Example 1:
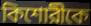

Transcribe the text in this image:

কিশোরীকে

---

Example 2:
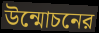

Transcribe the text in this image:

উন্মোচনের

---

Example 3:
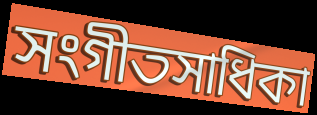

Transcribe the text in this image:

সংগীতসাধিকা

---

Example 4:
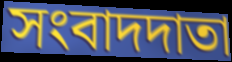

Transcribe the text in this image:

সংবাদদাতা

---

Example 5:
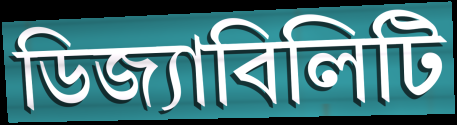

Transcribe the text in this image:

ডিজ্যাবিলিটি